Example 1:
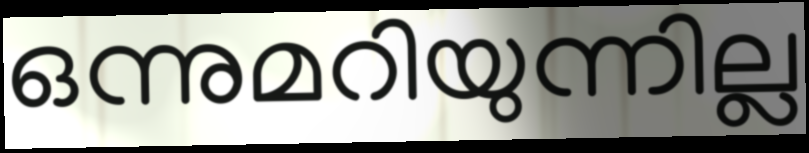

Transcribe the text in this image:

ഒന്നുമറിയുന്നില്ല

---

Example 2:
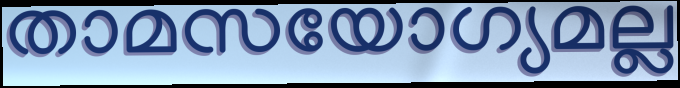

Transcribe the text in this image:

താമസയോഗ്യമല്ല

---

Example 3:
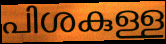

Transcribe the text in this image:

പിശകുള്ള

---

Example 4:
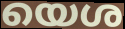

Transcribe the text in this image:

യെശ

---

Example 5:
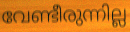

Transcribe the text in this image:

വേണ്ടീരുന്നില്ല